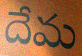
దేమ